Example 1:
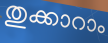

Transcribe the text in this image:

തുക്കാറാം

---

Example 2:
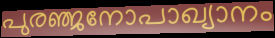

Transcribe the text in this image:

പുരഞ്ജനോപാഖ്യാനം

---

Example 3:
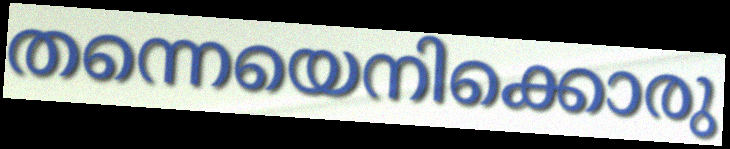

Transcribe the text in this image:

തന്നെയെനിക്കൊരു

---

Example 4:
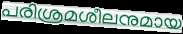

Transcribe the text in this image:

പരിശ്രമശീലനുമായ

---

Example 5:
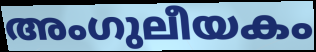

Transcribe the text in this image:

അംഗുലീയകം